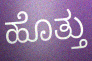
ಹೊತ್ತು